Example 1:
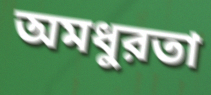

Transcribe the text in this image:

অমধুরতা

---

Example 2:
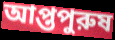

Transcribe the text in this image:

আপ্তপুরুষ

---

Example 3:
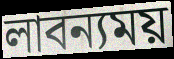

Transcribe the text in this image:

লাবন্যময়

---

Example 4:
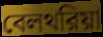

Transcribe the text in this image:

বেলথরিয়া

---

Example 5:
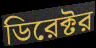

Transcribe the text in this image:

ডিরেক্টর